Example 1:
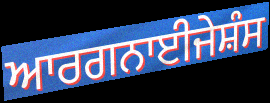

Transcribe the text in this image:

ਆਰਗਨਾਈਜੇਸ਼ੰਸ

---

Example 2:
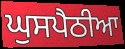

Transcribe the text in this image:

ਘੁਸਪੈਠੀਆ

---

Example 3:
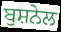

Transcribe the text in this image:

ਬੁਸ਼ਨੇਲ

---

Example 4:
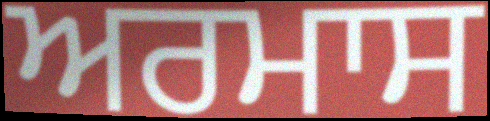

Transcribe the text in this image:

ਅਰਮਾਸ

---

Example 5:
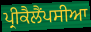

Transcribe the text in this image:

ਪ੍ਰੀਕੈਲੈਂਪਸੀਆ